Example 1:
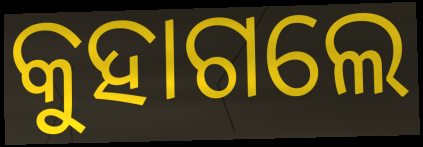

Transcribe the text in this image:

କୁହାଗଲେ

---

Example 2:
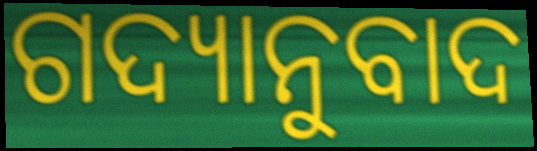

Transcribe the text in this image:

ଗଦ୍ୟାନୁବାଦ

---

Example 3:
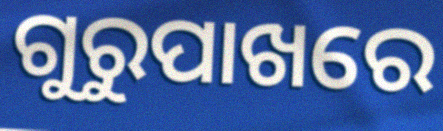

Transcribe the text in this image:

ଗୁରୁପାଖରେ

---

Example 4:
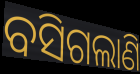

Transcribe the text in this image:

ବସିଗଲାଣି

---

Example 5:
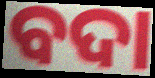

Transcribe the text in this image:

ବଦା